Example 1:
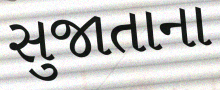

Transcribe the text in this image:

સુજાતાના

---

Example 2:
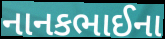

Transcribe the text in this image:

નાનકભાઈના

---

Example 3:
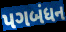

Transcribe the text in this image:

પગબંધન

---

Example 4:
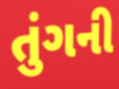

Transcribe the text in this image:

તુંગની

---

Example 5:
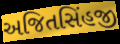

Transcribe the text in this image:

અજિતસિંહજી